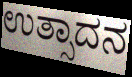
ಉತ್ಸಾದನ